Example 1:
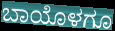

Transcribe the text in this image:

ಬಾಯೊಳಗೂ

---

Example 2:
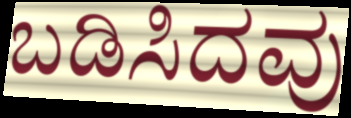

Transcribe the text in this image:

ಬಡಿಸಿದವು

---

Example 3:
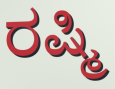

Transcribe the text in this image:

ರಷ್ಮಿ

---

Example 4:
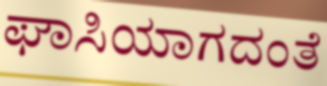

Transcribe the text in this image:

ಘಾಸಿಯಾಗದಂತೆ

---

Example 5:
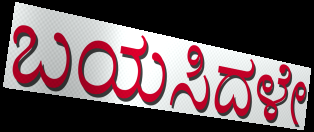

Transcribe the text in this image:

ಬಯಸಿದಳೇ